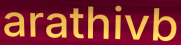
arathivb